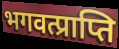
भगवत्प्राप्ति